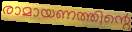
രാമായണത്തിന്റെ